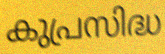
കുപ്രസിദ്ധ